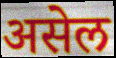
असेल